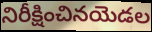
నిరీక్షించినయెడల